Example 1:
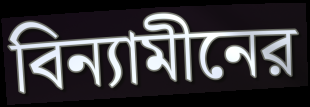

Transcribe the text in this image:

বিন্যামীনের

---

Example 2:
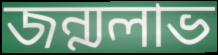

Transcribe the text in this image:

জন্মলাভ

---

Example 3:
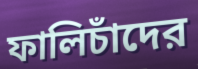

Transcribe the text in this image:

ফালিচাঁদের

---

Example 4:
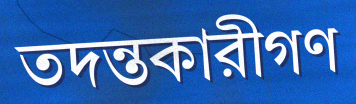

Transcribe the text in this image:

তদন্তকারীগণ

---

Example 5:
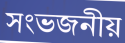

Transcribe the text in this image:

সংভজনীয়